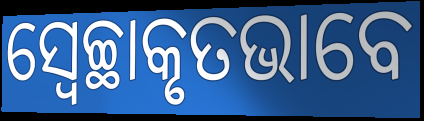
ସ୍ୱେଚ୍ଛାକୃତଭାବେ